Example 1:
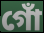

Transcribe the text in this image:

গোঁ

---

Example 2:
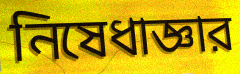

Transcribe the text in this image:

নিষেধাজ্ঞার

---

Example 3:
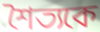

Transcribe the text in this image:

শৈত্যকে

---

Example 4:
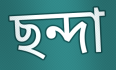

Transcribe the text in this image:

ছন্দা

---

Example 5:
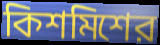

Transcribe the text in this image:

কিশমিশের